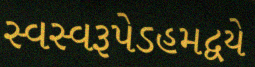
સ્વસ્વરૂપેઽહમદ્વયે